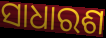
ସାଧାରଶ